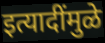
इत्यादींमुळे